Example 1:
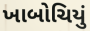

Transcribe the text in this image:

ખાબોચિયું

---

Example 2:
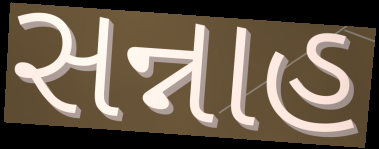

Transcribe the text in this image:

સન્નાહ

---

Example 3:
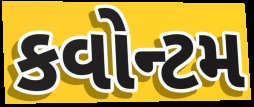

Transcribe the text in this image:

કવોન્ટમ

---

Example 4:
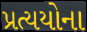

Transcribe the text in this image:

પ્રત્યયોના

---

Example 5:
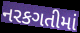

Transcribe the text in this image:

નરકગતીમાં